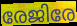
രേജിരേ